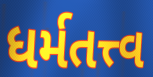
ધર્મતત્ત્વ